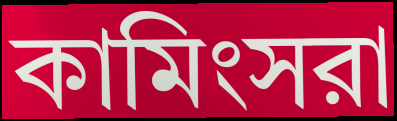
কামিংসরা